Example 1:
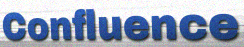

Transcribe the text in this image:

Confluence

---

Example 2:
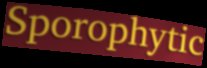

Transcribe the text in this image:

Sporophytic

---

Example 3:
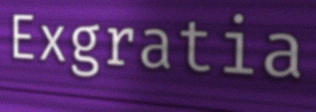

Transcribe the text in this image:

Exgratia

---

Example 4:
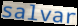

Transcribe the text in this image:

salvar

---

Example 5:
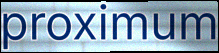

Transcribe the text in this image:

proximum